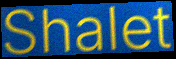
Shalet